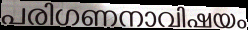
പരിഗണനാവിഷയം